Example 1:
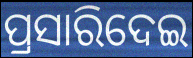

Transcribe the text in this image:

ପ୍ରସାରିଦେଇ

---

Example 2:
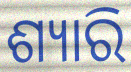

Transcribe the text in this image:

ଶ୍ୟାରି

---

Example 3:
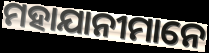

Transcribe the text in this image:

ମହାଯାନୀମାନେ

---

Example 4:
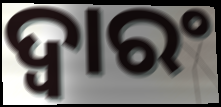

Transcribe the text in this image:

ଦ୍ୱାରଂ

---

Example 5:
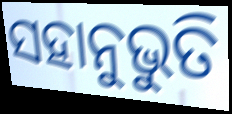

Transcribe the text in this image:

ସହାନୁଭୁତି